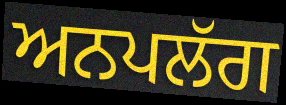
ਅਨਪਲੱਗ